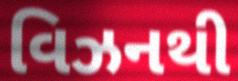
વિઝનથી